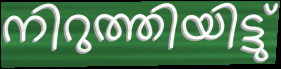
നിറുത്തിയിട്ടു്